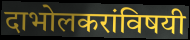
दाभोलकरांविषयी